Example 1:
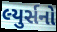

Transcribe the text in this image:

લ્યુર્સનો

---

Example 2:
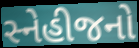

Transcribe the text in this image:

સ્નેહીજનો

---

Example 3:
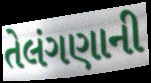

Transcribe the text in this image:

તેલંગણાની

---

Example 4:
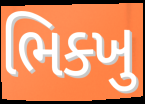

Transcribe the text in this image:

ભિક્ખુ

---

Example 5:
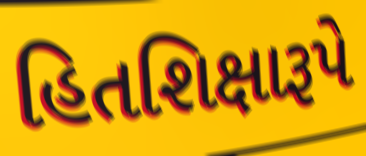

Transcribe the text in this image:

હિતશિક્ષારૂપે